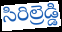
సిరిల్రెడ్డి